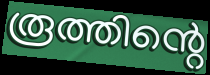
രൂത്തിന്റെ